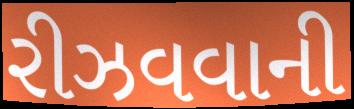
રીઝવવાની